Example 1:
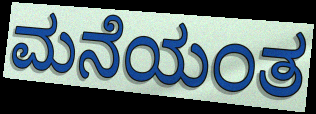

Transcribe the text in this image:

ಮನೆಯಂತ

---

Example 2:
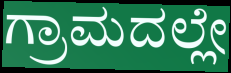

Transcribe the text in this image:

ಗ್ರಾಮದಲ್ಲೇ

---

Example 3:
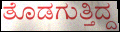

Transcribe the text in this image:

ತೊಡಗುತ್ತಿದ್ದ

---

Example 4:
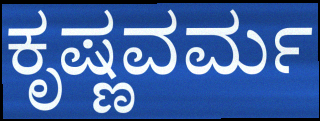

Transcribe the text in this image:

ಕೃಷ್ಣವರ್ಮ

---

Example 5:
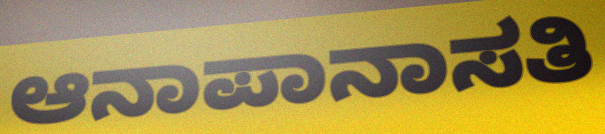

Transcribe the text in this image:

ಆನಾಪಾನಾಸತಿ